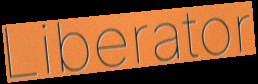
Liberator